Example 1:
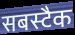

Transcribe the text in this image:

सबस्टैक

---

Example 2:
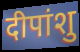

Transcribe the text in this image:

दीपांशु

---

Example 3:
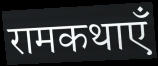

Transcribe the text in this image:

रामकथाएँ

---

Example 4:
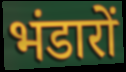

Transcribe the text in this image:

भंडारों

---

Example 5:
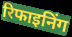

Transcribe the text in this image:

रिफाइनिंग